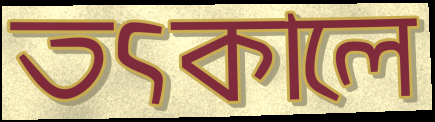
তৎকালে